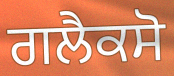
ਗਲੈਕਸੋ